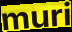
muri